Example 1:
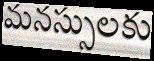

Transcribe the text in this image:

మనస్సులకు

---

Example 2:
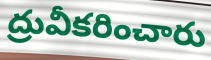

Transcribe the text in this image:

ద్రువీకరించారు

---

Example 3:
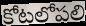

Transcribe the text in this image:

కోటలోపలి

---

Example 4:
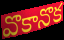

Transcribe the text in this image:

వొకానొక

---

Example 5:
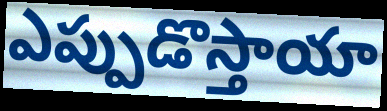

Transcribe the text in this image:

ఎప్పుడొస్తాయా